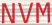
NVM